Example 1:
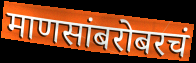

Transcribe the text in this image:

माणसांबरोबरचं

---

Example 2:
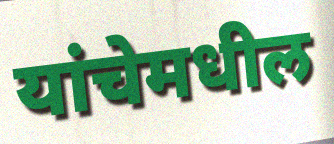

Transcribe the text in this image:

यांचेमधील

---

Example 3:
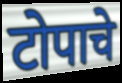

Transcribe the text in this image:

टोपाचे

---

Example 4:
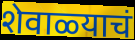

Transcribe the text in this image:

शेवाळ्याचं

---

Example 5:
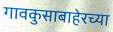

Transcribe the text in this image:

गावकुसाबाहेरच्या